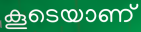
കൂടെയാണ്